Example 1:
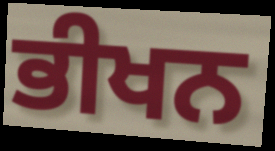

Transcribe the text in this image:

ਭੀਖਨ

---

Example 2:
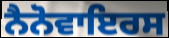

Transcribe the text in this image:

ਨੈਨੋਵਾਇਰਸ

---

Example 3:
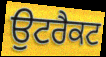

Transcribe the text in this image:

ਉਟਰੈਕਟ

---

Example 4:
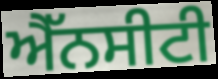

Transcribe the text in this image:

ਐੱਨਸੀਟੀ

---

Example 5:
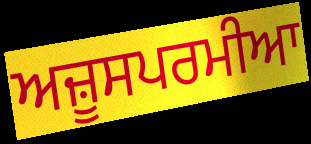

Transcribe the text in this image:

ਅਜ਼ੂਸਪਰਮੀਆ